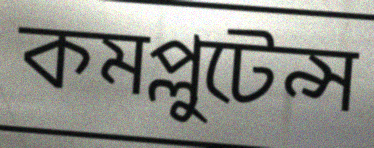
কমপ্লুটেন্স